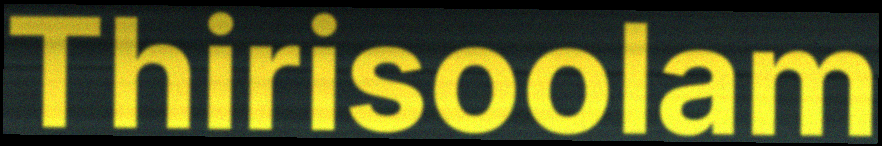
Thirisoolam